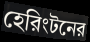
হেরিংটনের